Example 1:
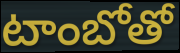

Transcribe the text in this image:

టాంబోతో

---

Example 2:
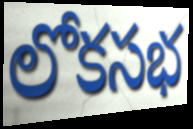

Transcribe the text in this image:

లోకసభ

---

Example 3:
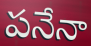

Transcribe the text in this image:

పనేనా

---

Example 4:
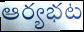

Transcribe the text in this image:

ఆర్యభట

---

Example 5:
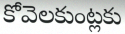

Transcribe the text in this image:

కోవెలకుంట్లకు